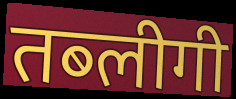
तब्‍लीगी